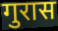
गुरास